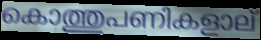
കൊത്തുപണികളാല്